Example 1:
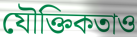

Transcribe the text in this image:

যৌক্তিকতাও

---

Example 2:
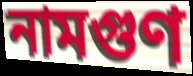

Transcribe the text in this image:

নামগুণ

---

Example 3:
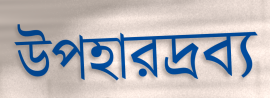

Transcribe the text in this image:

উপহারদ্রব্য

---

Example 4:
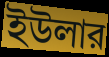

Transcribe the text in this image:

ইউলার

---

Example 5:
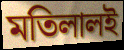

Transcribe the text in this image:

মতিলালই